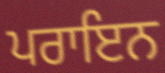
ਪਰਾਇਨ